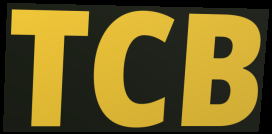
TCB